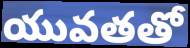
యువతతో